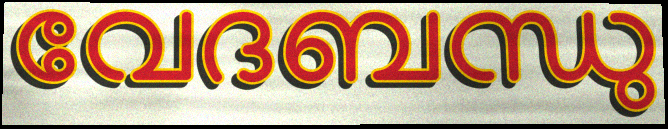
വേദബന്ധു